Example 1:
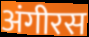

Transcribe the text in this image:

अंगीरस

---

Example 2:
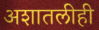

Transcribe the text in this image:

अशातलीही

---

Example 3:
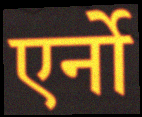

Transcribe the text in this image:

एर्नो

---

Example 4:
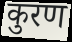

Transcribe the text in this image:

कुरण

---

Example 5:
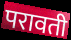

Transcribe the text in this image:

परावती